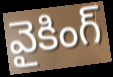
వైకింగ్